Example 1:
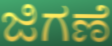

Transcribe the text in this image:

ಜಿಗಣೆ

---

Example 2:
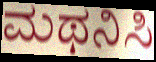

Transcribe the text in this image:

ಮಥನಿಸಿ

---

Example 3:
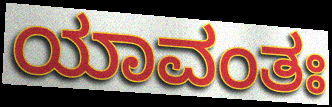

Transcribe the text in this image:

ಯಾವಂತಃ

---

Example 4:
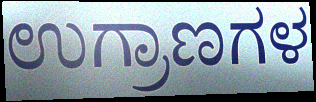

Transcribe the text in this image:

ಉಗ್ರಾಣಗಳ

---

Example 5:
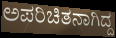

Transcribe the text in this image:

ಅಪರಿಚಿತನಾಗಿದ್ದ